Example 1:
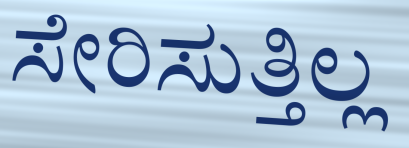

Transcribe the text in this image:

ಸೇರಿಸುತ್ತಿಲ್ಲ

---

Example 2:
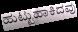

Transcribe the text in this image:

ಹುಟ್ಟುಹಾಕಿದವು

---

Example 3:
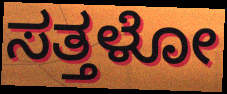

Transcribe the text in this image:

ಸತ್ತಳೋ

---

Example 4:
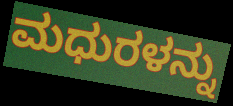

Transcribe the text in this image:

ಮಧುರಳನ್ನು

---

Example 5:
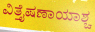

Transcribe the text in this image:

ವಿತ್ತೈಷಣಾಯಾಶ್ಚ